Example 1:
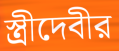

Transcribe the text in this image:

স্ত্রীদেবীর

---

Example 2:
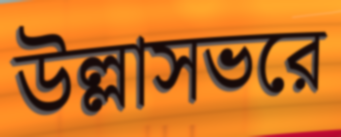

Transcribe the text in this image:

উল্লাসভরে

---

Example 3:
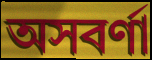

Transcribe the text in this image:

অসবর্ণা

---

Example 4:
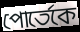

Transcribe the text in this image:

পোর্তেকে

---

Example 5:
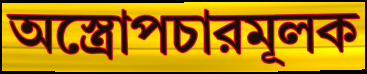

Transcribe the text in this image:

অস্ত্রোপচারমূলক